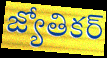
జ్యోతికర్